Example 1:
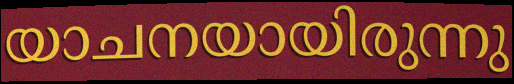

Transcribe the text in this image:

യാചനയായിരുന്നു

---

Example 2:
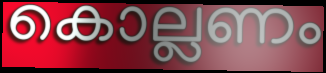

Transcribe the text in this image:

കൊല്ലണം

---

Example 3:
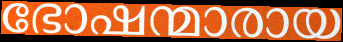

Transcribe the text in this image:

ഭോഷന്മാരായ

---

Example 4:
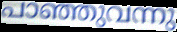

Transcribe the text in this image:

പാഞ്ഞുവന്നു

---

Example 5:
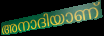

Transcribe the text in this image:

അനാദിയാണ്